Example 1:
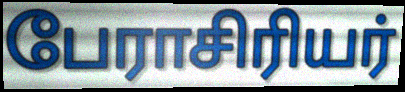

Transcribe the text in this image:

பேராசிரியர்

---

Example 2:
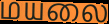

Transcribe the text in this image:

மயலை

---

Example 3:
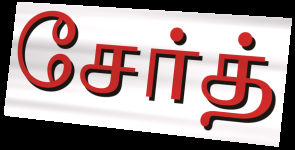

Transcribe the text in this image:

சேர்த்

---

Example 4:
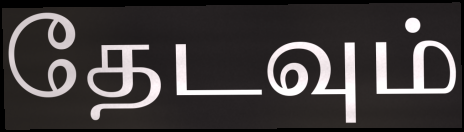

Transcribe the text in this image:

தேடவும்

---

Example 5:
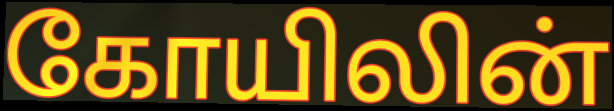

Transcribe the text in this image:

கோயிலின்